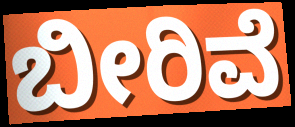
ಬೀರಿವೆ